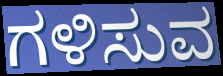
ಗಳಿಸುವ